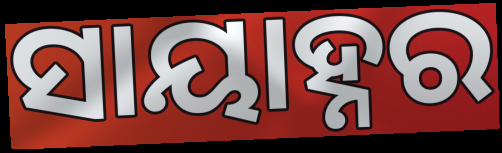
ସାୟାହ୍ନର